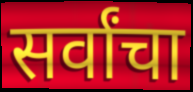
सर्वांचा